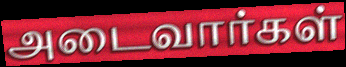
அடைவார்கள்